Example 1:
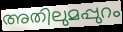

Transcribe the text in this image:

അതിലുമപ്പുറം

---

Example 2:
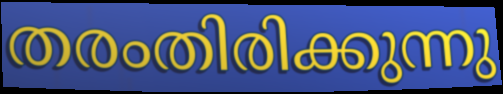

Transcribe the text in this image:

തരംതിരിക്കുന്നു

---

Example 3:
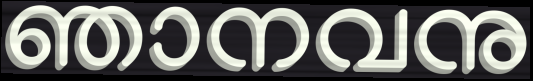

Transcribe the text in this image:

ഞാനവനു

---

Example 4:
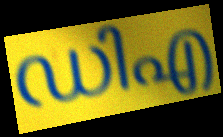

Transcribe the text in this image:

ഡിഎ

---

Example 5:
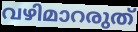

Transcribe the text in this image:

വഴിമാറരുത്